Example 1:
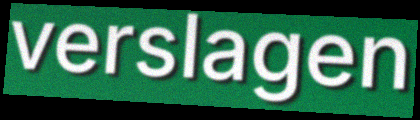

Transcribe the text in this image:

verslagen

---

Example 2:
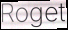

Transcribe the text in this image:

Roget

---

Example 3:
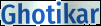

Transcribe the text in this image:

Ghotikar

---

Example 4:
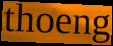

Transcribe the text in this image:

thoeng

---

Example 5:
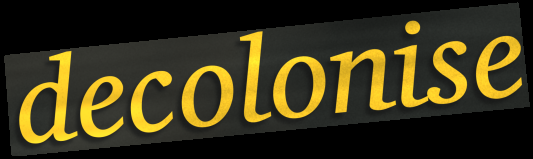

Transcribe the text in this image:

decolonise